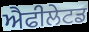
ਐਫੀਲੇਟਡ